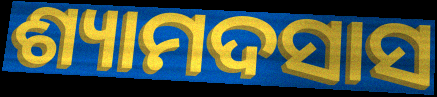
ଶ୍ୟାମଦସାସ